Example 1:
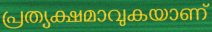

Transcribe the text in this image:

പ്രത്യക്ഷമാവുകയാണ്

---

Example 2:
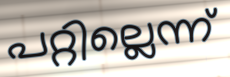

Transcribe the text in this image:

പറ്റില്ലെന്ന്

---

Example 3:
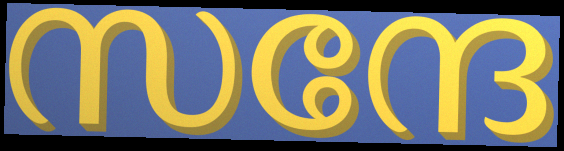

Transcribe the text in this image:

സന്ദേ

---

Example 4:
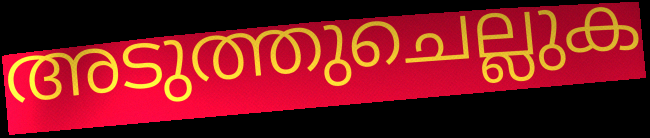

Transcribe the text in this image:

അടുത്തുചെല്ലുക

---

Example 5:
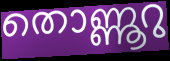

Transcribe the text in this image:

തൊണ്ണൂറു